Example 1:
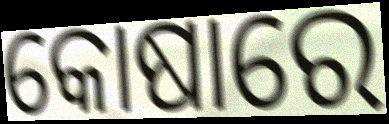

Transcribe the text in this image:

କୋଷାରେ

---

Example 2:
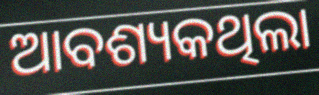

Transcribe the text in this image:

ଆବଶ୍ୟକଥିଲା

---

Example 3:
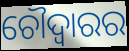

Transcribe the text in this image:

ଚୌଦ୍ୱାରର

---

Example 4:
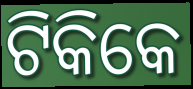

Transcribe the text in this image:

ଟିକିକେ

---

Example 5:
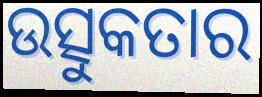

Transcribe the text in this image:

ଉତ୍ସୁକତାର